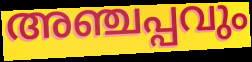
അഞ്ചപ്പവും